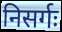
निसर्गः